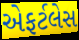
એફર્ટલેસ